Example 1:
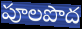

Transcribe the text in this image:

పూలపొద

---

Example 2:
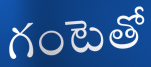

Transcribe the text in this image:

గంటెతో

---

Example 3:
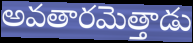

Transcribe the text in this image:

అవతారమెత్తాడు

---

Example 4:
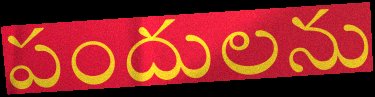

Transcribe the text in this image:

పందులను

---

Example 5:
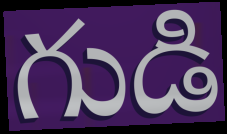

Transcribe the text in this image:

గుడి